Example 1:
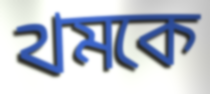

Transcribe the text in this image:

থমকে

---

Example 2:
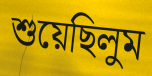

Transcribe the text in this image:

শুয়েছিলুম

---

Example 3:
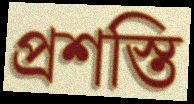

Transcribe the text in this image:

প্রশস্তি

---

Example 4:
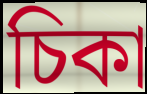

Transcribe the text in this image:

চিকা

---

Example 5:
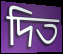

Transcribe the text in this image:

দিত